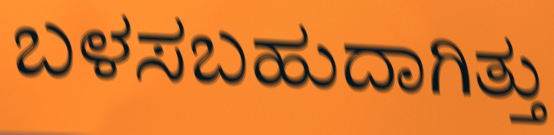
ಬಳಸಬಹುದಾಗಿತ್ತು